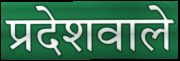
प्रदेशवाले